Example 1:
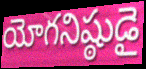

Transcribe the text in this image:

యోగనిష్ఠుడై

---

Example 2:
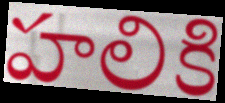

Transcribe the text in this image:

హలికి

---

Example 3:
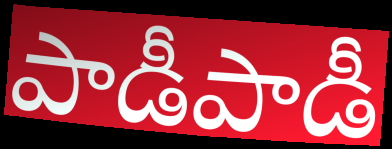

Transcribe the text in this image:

పాడీపాడీ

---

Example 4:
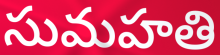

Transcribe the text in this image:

సుమహతి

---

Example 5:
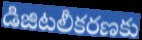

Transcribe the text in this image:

డిజిటలీకరణకు